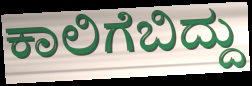
ಕಾಲಿಗೆಬಿದ್ದು